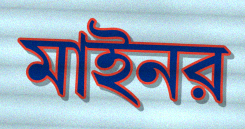
মাইনর